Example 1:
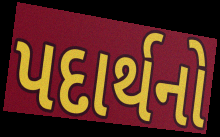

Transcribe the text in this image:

પદાર્થનો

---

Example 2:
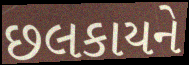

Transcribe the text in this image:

છલકાયને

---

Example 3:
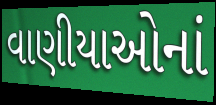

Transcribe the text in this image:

વાણીયાઓનાં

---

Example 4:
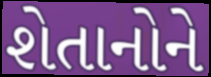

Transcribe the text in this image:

શેતાનોને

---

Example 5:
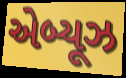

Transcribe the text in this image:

એબ્યૂઝ